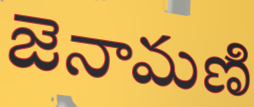
జెనామణి